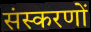
संस्करणों